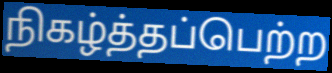
நிகழ்த்தப்பெற்ற